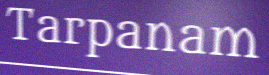
Tarpanam